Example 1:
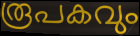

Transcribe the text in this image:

രൂപകവും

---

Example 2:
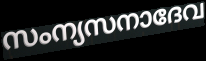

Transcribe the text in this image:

സംന്യസനാദേവ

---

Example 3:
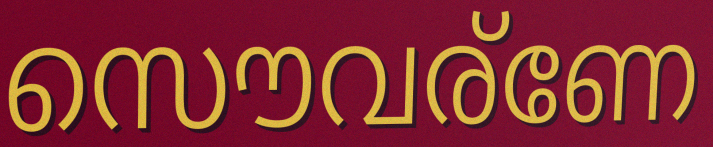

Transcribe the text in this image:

സൌവര്ണേ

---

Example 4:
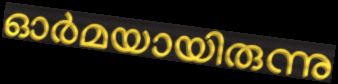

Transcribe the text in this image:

ഓർമയായിരുന്നു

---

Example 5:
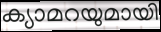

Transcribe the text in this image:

ക്യാമറയുമായി